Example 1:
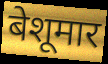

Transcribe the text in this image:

बेशूमार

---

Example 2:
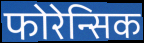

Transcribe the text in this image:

फोरेन्सिक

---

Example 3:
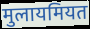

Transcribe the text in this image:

मुलायमियत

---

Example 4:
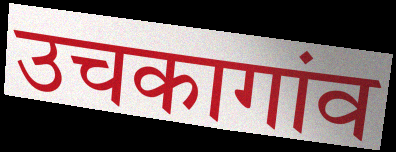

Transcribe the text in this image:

उचकागांव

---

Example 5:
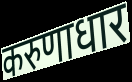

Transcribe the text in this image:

करुणाधार